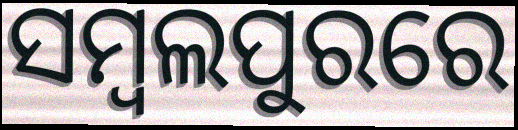
ସମ୍ବଲପୁରରେ